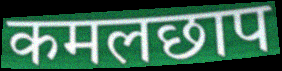
कमलछाप